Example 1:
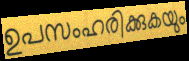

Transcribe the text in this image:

ഉപസംഹരിക്കുകയും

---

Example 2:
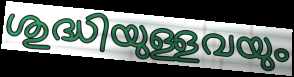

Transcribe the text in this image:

ശുദ്ധിയുള്ളവയും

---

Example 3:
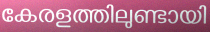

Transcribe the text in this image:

കേരളത്തിലുണ്ടായി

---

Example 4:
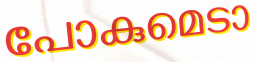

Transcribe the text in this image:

പോകുമെടാ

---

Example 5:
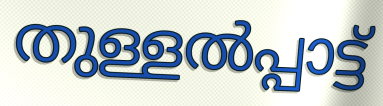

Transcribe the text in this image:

തുള്ളൽപ്പാട്ട്